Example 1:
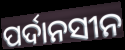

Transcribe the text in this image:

ପର୍ଦାନସୀନ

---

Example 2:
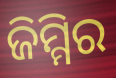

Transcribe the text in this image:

ଜିମ୍ମିର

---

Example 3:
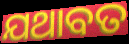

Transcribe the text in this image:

ଯଥାବତ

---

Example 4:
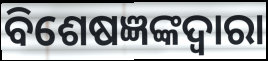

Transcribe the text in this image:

ବିଶେଷଜ୍ଞଙ୍କଦ୍ୱାରା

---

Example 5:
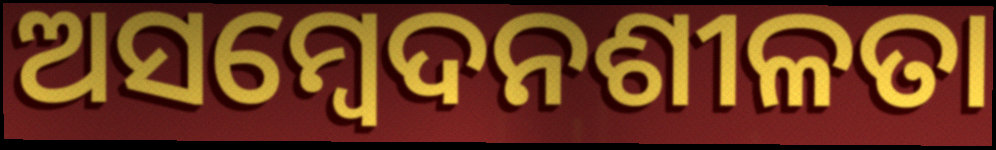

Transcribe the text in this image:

ଅସମ୍ବେଦନଶୀଳତା